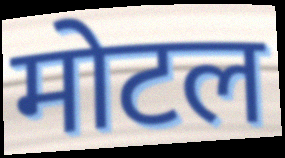
मोटल